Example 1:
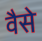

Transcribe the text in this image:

वैसे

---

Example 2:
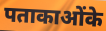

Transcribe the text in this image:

पताकाओंके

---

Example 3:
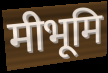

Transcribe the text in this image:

मीभूमि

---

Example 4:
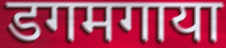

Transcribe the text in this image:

डगमगाया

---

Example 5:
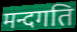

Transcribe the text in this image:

मन्दगति